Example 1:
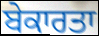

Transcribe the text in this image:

ਬੇਕਾਰਤਾ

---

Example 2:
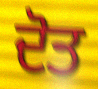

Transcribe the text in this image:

ਦੋਤ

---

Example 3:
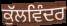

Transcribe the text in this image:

ਕੁੱਲਵਿੰਦਰ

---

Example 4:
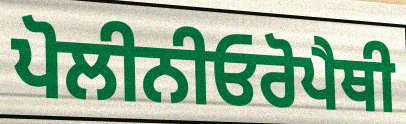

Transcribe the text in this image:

ਪੋਲੀਨੀਓਰੋਪੈਥੀ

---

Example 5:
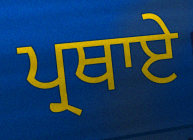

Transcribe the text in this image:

ਪ੍ਰਥਾਏ